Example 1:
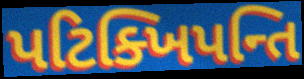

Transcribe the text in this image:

પટિક્ખિપન્તિ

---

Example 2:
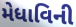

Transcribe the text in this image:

મેધાવિની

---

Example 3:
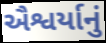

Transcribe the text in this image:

ઐશ્વર્યાનું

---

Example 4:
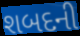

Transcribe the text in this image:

શબદની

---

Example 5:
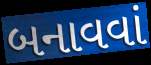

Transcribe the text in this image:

બનાવવાં